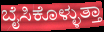
ಬೈಸಿಕೊಳ್ಳುತ್ತಾ